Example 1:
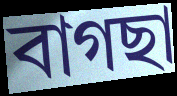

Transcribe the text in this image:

বাগছা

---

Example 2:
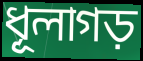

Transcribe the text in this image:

ধূলাগড়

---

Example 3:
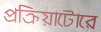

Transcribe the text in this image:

প্ৰক্ৰিয়াটোৱে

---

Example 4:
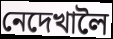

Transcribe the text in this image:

নেদেখালৈ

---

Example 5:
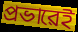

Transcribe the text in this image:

প্ৰভাৱেই